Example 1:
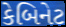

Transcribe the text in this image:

કેબિનેટ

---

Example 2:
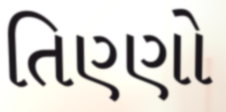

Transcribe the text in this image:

તિણ્ણો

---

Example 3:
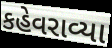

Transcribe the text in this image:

કહેવરાવ્યા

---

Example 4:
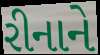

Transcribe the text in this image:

રીનાને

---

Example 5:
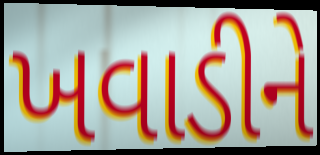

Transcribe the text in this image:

ખવાડીને